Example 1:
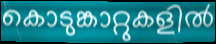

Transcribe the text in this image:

കൊടുങ്കാറ്റുകളിൽ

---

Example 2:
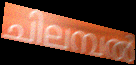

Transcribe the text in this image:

ചിലമ്പൽ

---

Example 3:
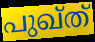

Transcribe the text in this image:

പുഖ്ത്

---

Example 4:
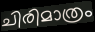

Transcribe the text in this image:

ചിരിമാത്രം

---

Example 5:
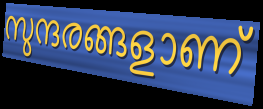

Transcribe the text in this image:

സുന്ദരങ്ങളാണ്